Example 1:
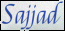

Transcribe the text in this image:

Sajjad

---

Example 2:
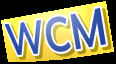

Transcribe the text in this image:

WCM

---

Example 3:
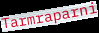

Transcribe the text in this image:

Tarmraparni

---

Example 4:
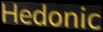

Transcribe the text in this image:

Hedonic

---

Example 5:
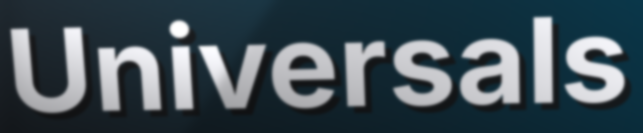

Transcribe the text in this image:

Universals